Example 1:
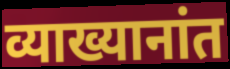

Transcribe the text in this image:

व्याख्यानांत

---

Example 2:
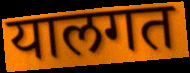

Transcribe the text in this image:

यालगत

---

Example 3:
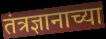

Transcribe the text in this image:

तंत्रज्ञानाच्या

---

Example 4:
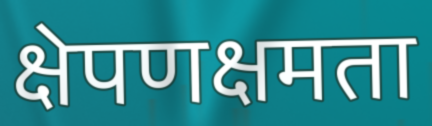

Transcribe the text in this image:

क्षेपणक्षमता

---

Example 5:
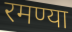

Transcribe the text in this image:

रमण्या